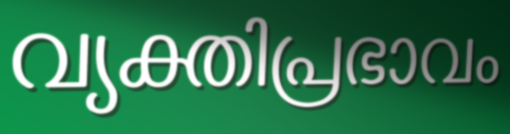
വ്യക്തിപ്രഭാവം